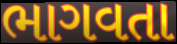
ભાગવતા